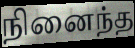
நினைந்த